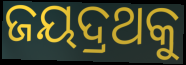
ଜୟଦ୍ରଥକୁ